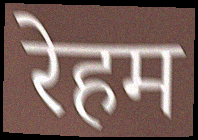
रेहम